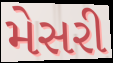
મેસરી